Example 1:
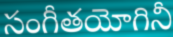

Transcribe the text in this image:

సంగీతయోగినీ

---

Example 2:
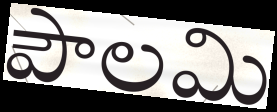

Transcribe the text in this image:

పౌలమి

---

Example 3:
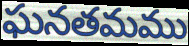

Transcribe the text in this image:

ఘనతమము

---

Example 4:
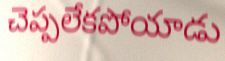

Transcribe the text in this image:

చెప్పలేకపోయాడు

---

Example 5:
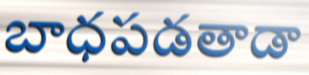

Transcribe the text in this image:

బాధపడతాడా